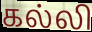
கல்லி